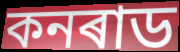
কনৰাড